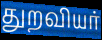
துறவியர்